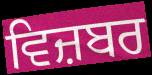
ਵਿਜ਼ਬਰ